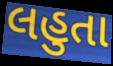
લહુતા